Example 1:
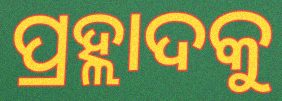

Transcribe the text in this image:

ପ୍ରହ୍ଲାଦକୁ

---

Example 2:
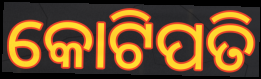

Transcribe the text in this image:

କୋଟିପତି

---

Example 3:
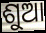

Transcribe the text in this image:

ଶୁଆ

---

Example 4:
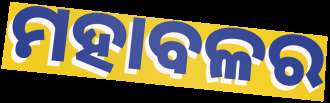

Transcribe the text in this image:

ମହାବଳର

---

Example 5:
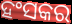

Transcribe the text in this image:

ହଂସକର